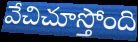
వేచిచూస్తోంది